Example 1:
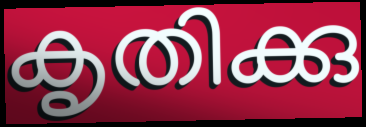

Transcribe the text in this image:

കൃതിക്കു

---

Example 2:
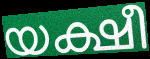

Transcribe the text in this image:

യക്ഷീ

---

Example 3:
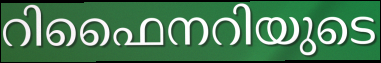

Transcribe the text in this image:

റിഫൈനറിയുടെ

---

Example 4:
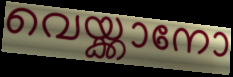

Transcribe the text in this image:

വെയ്ക്കാനോ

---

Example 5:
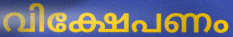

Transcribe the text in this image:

വിക്ഷേപണം